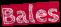
Bales